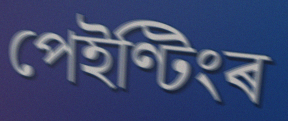
পেইণ্টিংৰ